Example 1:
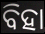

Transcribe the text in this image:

ବିହା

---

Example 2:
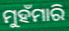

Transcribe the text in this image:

ମୁହଁମାରି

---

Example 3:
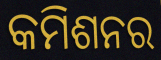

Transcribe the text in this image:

କମିଶନର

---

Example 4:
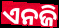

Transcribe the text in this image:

ଏନଜି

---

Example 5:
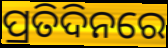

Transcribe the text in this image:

ପ୍ରତିଦିନରେ